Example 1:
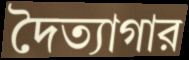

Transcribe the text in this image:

দৈত্যাগার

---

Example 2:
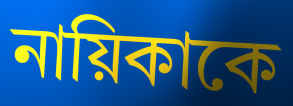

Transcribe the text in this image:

নায়িকাকে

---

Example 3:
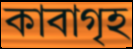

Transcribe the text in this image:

কাবাগৃহ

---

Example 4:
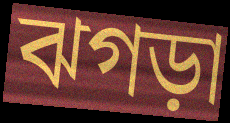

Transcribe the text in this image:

ঝগড়া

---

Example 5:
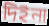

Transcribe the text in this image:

দিইনা